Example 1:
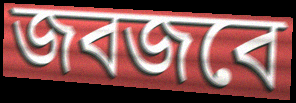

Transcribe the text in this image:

জবজবে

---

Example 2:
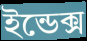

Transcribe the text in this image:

ইন্ডেক্স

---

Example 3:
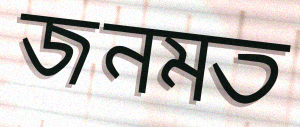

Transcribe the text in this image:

জনমত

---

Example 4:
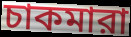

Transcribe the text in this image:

চাকমারা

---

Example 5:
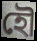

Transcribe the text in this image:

হৌ